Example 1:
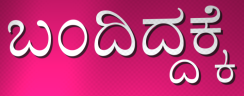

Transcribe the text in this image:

ಬಂದಿದ್ದಕ್ಕೆ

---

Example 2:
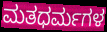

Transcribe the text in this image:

ಮತಧರ್ಮಗಳ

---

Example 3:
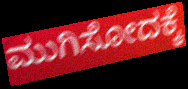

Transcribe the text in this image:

ಮುಗಿಸೋದಕ್ಕೆ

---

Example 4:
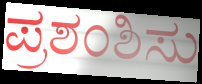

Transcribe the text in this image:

ಪ್ರಶಂಶಿಸು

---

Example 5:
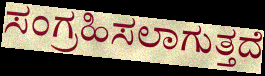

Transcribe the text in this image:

ಸಂಗ್ರಹಿಸಲಾಗುತ್ತದೆ